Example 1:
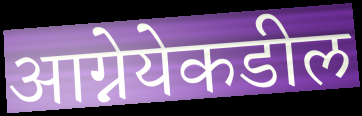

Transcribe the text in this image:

आग्नेयेकडील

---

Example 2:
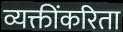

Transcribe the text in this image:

व्यक्तींकरिता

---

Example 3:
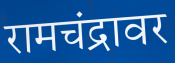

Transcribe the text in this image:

रामचंद्रावर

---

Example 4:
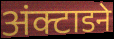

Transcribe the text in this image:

अंक्टाडने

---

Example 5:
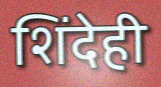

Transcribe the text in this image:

शिंदेही